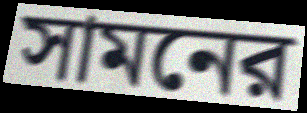
সামনের